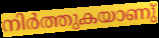
നിർത്തുകയാണു്